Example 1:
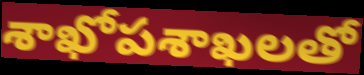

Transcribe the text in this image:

శాఖోపశాఖలతో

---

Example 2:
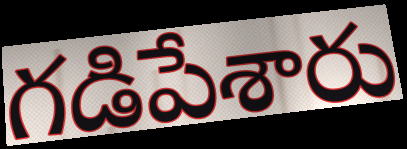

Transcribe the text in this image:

గడిపేశారు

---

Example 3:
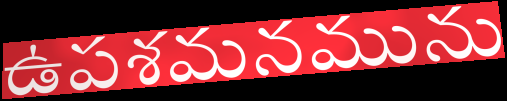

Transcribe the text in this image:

ఉపశమనమును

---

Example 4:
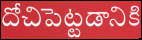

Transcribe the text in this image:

దోచిపెట్టడానికి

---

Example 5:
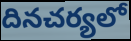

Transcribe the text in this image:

దినచర్యలో